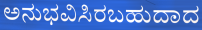
ಅನುಭವಿಸಿರಬಹುದಾದ